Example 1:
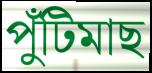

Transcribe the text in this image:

পুঁটিমাছ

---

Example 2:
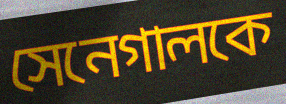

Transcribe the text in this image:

সেনেগালকে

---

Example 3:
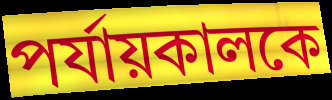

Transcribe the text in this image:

পর্যায়কালকে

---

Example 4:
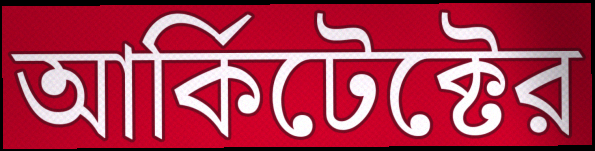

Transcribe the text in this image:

আর্কিটেক্টের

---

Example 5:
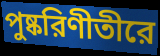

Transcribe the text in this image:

পুষ্করিণীতীরে